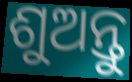
ଶୁଅନ୍ତୁ